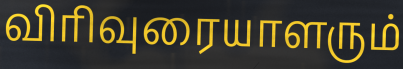
விரிவுரையாளரும்